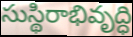
సుస్థిరాభివృద్ధి